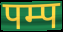
पम्प